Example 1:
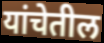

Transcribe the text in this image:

यांचेतील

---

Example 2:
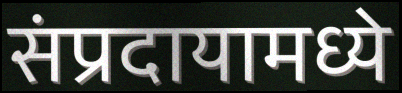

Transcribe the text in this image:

संप्रदायामध्ये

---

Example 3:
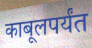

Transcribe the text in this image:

काबूलपर्यंत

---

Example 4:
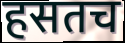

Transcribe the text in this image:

हसतच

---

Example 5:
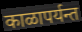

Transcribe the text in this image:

काळापर्यन्त